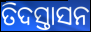
ତିଦସ୍ତାସନ